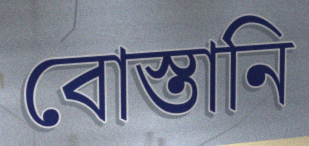
বোস্তানি